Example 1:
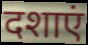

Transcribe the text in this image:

दशाएं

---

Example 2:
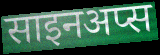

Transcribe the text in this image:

साइनअप्स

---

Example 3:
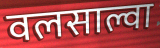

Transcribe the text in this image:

वलसाल्वा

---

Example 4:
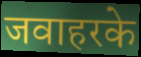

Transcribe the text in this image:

जवाहरके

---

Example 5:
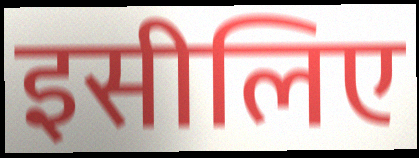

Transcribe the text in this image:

इसीलिए